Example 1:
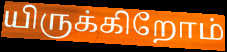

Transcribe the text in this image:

யிருக்கிறோம்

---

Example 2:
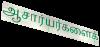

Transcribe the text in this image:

ஆசார்யர்களைக்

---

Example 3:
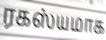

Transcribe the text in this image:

ரகஸ்யமாக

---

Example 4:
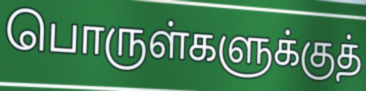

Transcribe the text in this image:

பொருள்களுக்குத்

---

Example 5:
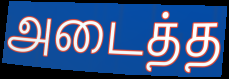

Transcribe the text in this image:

அடைத்த